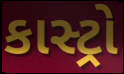
કાસ્ટ્રો